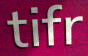
tifr